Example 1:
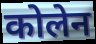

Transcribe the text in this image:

कोलेन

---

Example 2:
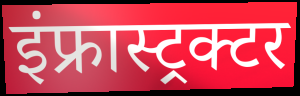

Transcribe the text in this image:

इंफ्रास्ट्रक्टर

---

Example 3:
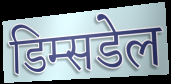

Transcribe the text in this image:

डिम्सडेल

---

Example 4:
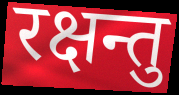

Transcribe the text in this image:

रक्षन्तु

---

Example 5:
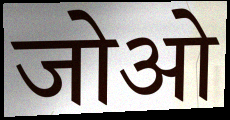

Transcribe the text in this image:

जोओ